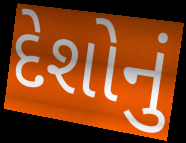
દેશોનું